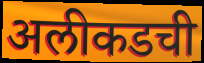
अलीकडची